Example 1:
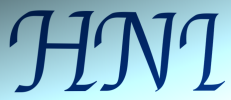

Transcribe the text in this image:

HNI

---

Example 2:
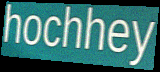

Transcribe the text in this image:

hochhey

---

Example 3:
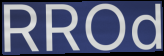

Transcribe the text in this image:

RROd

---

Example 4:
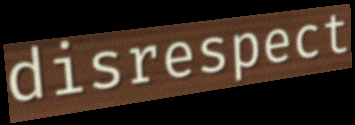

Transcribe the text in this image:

disrespect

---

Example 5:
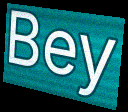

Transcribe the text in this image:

Bey